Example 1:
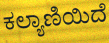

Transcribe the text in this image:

ಕಲ್ಯಾಣಿಯಿದೆ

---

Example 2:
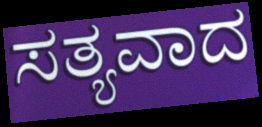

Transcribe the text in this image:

ಸತ್ಯವಾದ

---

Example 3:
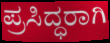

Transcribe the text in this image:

ಪ್ರಸಿದ್ಧರಾಗಿ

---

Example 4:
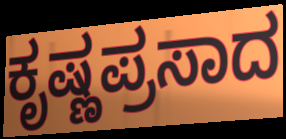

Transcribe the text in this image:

ಕೃಷ್ಣಪ್ರಸಾದ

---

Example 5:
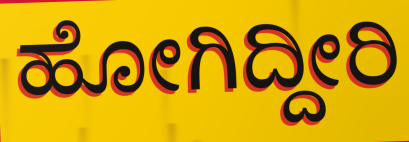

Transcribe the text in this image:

ಹೋಗಿದ್ದೀರಿ